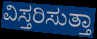
ವಿಸ್ತರಿಸುತ್ತಾ